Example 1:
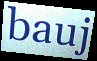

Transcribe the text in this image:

bauj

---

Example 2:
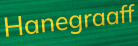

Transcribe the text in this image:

Hanegraaff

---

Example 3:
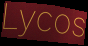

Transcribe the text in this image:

Lycos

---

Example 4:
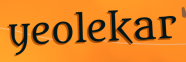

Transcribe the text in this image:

yeolekar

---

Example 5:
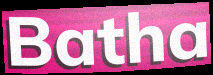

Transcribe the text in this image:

Batha